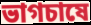
ভাগচাষে